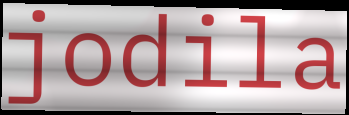
jodila